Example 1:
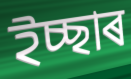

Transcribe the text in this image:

ইচ্ছাৰ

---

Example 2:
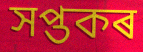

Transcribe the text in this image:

সপ্তকৰ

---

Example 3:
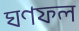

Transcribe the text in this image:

ঘণফল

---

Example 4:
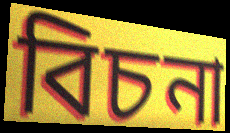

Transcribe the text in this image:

বিচনা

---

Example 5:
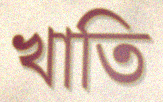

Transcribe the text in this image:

খাতি